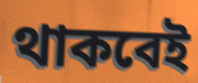
থাকবেই